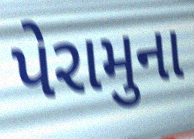
પેરામુના